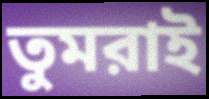
তুমরাই